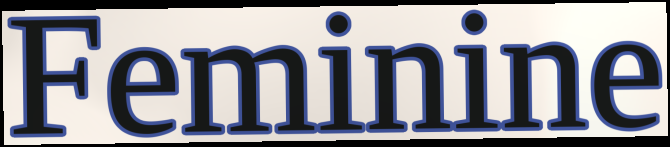
Feminine